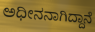
ಅಧೀನನಾಗಿದ್ದಾನೆ